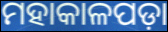
ମହାକାଳପଡ଼ା